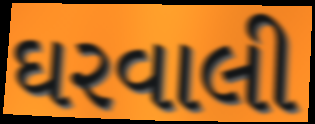
ઘરવાલી